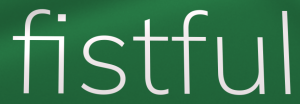
fistful